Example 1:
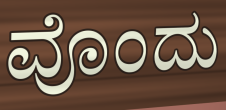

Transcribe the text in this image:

ವೊಂದು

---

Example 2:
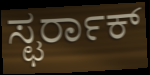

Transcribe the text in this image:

ಸ್ಟರ್ರಾಕ್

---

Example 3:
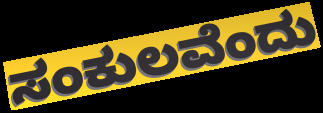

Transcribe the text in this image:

ಸಂಕುಲವೆಂದು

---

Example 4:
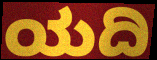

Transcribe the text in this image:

ಯದಿ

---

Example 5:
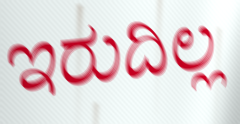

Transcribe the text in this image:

ಇರುದಿಲ್ಲ